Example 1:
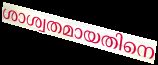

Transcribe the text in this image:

ശാശ്വതമായതിനെ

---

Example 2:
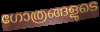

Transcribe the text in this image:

ഗോത്രങ്ങളുടെ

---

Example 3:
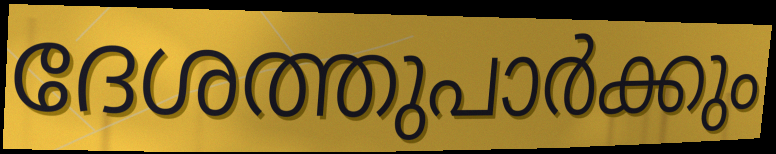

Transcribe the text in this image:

ദേശത്തുപാർക്കും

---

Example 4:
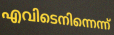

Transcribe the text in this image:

എവിടെനിന്നെന്ന്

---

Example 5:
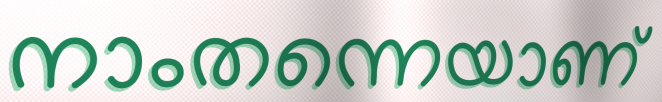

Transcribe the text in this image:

നാംതന്നെയാണ്